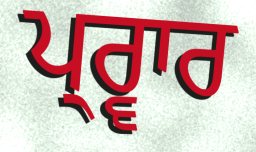
ਪ੍ਰ੍ਵਾਰ